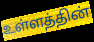
உள்ளத்தின்